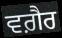
ਵਗ਼ੈਰ